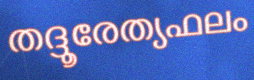
തദ്ദൂരേത്യഫലം